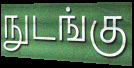
நுடங்கு